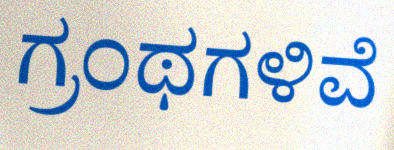
ಗ್ರಂಥಗಳಿವೆ